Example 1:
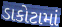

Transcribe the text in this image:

ડાકોટામાં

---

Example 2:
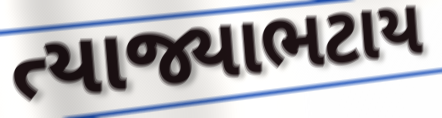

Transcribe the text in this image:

ત્યાજ્યાભટાય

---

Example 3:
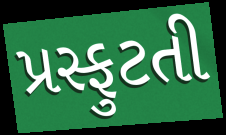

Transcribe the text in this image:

પ્રસ્ફુટતી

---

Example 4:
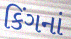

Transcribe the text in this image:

કિંગનાં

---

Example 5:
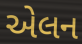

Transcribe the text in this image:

એલન